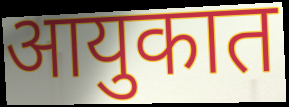
आयुकात